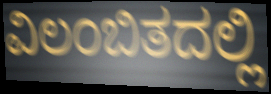
ವಿಲಂಬಿತದಲ್ಲಿ